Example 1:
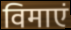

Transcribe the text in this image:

विमाएं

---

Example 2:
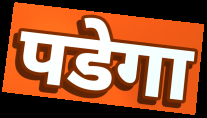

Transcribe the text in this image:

पडेगा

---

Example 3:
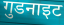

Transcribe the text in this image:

गुडनाइट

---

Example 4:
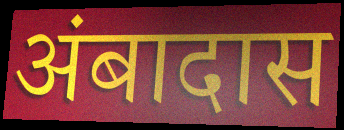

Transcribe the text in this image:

अंबादास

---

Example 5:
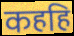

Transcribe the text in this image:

कहहि